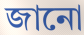
জানো